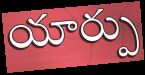
యార్పు